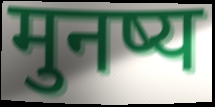
मुनष्य